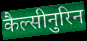
कैल्सीनुरिन